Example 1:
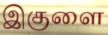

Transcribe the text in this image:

இகுளை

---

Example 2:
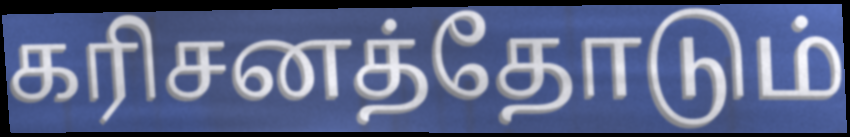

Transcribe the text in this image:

கரிசனத்தோடும்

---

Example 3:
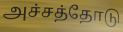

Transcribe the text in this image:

அச்சத்தோடு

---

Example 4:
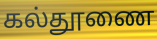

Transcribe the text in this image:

கல்தூணை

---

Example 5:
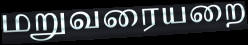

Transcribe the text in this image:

மறுவரையறை